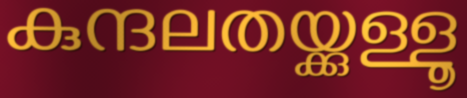
കുന്ദലതയ്ക്കുള്ളൂ